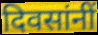
दिवसांनीं